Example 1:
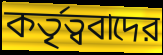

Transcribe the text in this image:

কর্তৃত্ববাদের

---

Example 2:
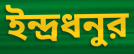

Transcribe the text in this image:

ইন্দ্রধনুর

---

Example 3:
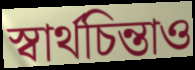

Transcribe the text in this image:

স্বার্থচিন্তাও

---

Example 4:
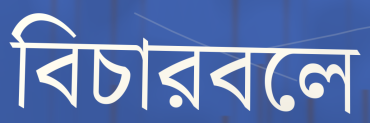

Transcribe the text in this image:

বিচারবলে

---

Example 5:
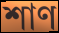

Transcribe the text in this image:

শাণ